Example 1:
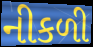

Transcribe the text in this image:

નીકળી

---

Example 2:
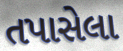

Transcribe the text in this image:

તપાસેલા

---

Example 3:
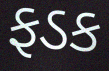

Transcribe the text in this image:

ફડક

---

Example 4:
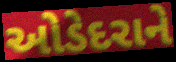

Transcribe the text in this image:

ઓડેદરાને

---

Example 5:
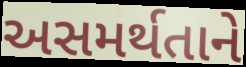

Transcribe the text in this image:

અસમર્થતાને